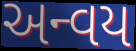
અન્વય